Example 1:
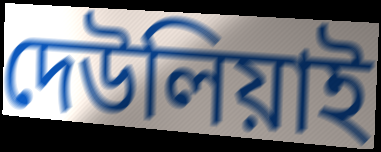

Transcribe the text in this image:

দেউলিয়াই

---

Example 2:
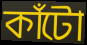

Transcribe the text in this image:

কাঁটো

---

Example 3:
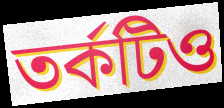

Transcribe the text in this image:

তর্কটিও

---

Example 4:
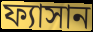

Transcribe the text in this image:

ফ্যাসান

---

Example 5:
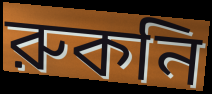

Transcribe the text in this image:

রুকনি